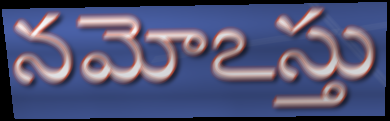
నమోఽస్తు